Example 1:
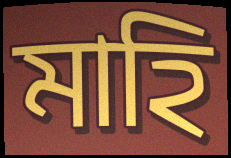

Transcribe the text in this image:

মাহি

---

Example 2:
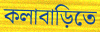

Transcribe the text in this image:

কলাবাড়িতে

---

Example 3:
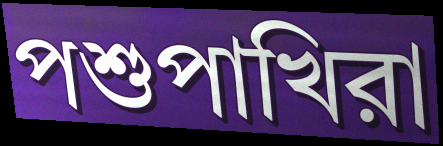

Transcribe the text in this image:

পশুপাখিরা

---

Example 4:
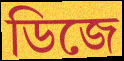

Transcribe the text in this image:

ডিজে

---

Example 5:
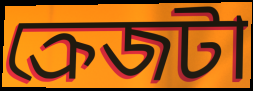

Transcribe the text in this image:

ক্রেজটা